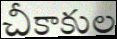
చీకాకుల